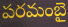
పరమంబై